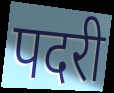
पदरी